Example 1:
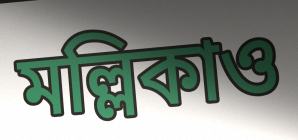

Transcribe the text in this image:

মল্লিকাও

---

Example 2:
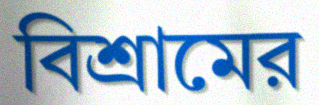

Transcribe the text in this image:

বিশ্রামের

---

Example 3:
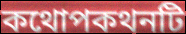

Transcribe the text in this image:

কথোপকথনটি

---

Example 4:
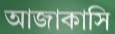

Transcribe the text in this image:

আজাকাসি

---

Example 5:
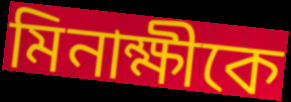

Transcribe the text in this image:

মিনাক্ষীকে